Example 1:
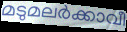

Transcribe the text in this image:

മടുമലർക്കാവീ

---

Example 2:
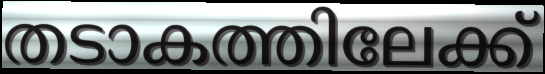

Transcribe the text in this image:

തടാകത്തിലേക്ക്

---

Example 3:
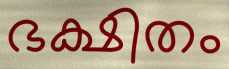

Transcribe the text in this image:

ഭക്ഷിതം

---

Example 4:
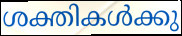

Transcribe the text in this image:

ശക്തികൾക്കു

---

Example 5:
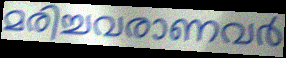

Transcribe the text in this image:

മരിച്ചവരാണവർ